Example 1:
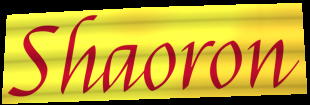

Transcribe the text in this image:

Shaoron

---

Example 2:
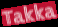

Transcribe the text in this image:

Takka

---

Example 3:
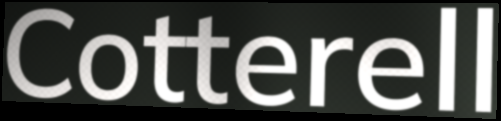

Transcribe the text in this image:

Cotterell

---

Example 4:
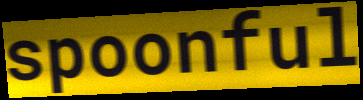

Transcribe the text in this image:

spoonful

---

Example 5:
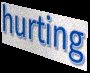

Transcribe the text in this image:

hurting